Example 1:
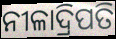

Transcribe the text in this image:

ନୀଳାଦ୍ରିପତି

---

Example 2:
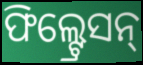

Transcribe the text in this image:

ଫିଲ୍ଟ୍ରେସନ୍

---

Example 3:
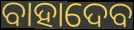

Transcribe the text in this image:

ବାହାଦେବ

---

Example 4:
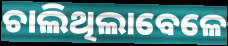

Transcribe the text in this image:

ଚାଲିଥିଲାବେଳେ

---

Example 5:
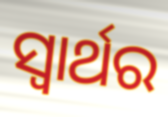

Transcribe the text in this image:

ସ୍ଵାର୍ଥର